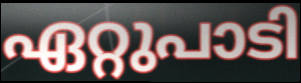
ഏറ്റുപാടി